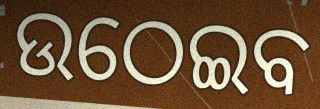
ଉଠେଇବ